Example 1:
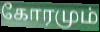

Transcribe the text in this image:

கோரமும்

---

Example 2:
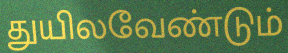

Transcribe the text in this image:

துயிலவேண்டும்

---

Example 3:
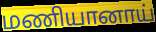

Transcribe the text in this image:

மணியானாய்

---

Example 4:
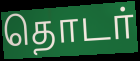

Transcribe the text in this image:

தொடர்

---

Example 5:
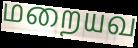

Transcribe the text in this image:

மறையவ